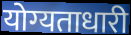
योग्यताधारी